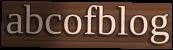
abcofblog